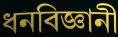
ধনবিজ্ঞানী